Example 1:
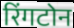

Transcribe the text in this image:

रिंगटोन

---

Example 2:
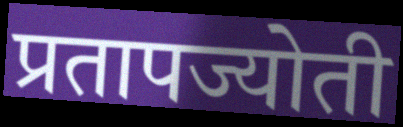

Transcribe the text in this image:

प्रतापज्योती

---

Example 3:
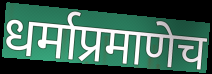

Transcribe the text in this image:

धर्माप्रमाणेच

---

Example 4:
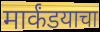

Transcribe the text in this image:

मार्कंडयाचा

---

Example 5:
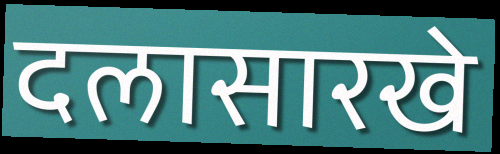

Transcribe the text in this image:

दलासारखे